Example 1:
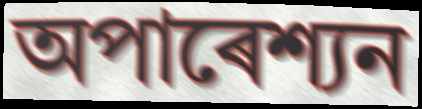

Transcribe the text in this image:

অপাৰেশ্যন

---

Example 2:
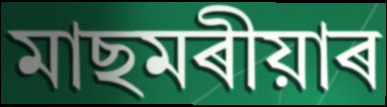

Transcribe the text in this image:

মাছমৰীয়াৰ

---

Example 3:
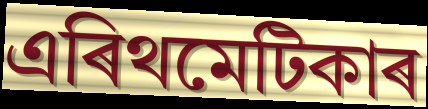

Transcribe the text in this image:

এৰিথমেটিকাৰ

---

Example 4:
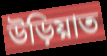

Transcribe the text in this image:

উড়িয়াত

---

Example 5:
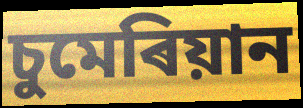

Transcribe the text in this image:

চুমেৰিয়ান